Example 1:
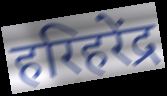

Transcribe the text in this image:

हरिहरेंद्र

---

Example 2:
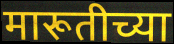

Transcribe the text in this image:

मारूतीच्या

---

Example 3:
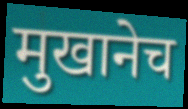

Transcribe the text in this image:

मुखानेच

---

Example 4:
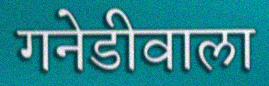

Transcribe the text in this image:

गनेडीवाला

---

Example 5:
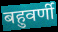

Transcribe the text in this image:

बहुवर्णी